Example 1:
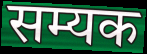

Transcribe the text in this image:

सम्‍यक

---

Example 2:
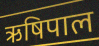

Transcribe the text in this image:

ऋषिपाल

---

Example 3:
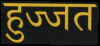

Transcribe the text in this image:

हुज्जत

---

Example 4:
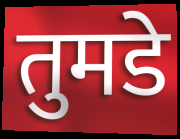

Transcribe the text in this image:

तुमडे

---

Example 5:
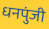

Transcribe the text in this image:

धनपुंजी